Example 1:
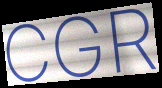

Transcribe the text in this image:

CGR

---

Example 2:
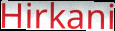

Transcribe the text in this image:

Hirkani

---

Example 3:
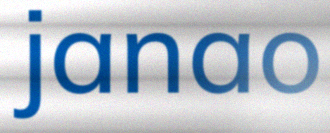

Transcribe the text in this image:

janao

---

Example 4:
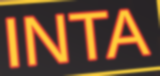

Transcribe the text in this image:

INTA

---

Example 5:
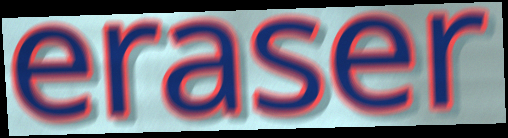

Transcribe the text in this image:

eraser